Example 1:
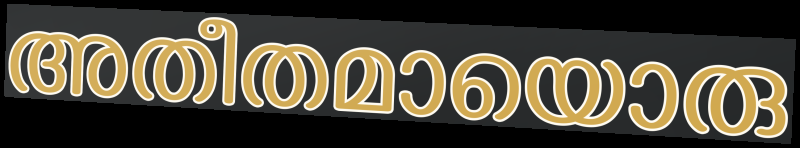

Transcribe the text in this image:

അതീതമായൊരു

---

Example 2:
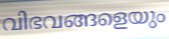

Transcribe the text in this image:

വിഭവങ്ങളെയും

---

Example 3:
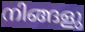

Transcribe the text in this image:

നിങ്ങളു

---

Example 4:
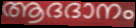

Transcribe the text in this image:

ആദദാനം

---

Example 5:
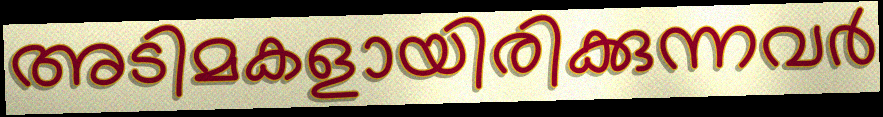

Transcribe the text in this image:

അടിമകളായിരിക്കുന്നവർ